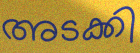
അടക്കി